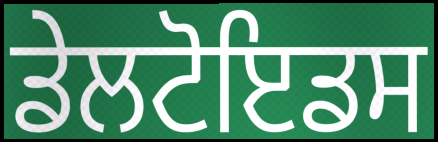
ਡੇਲਟੋਇਡਸ